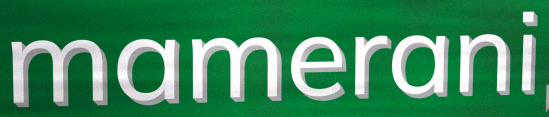
mamerani